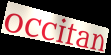
occitan